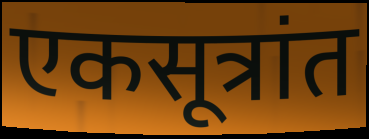
एकसूत्रांत